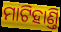
ମାଟିହାଣ୍ତି